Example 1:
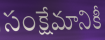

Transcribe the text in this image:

సంక్షేమానికీ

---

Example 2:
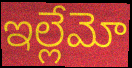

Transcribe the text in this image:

ఇల్లేమో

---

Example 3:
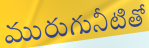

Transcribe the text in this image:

మురుగునీటితో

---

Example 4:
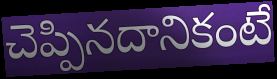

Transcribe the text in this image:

చెప్పినదానికంటే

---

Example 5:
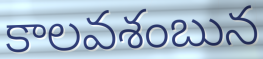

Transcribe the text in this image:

కాలవశంబున